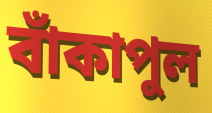
বাঁকাপুল